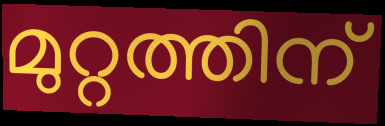
മുറ്റത്തിന്